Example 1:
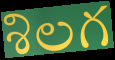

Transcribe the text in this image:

శిలగ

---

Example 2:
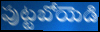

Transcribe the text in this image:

పుట్టబోయెడి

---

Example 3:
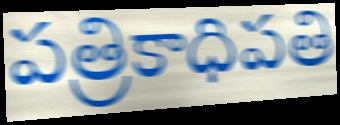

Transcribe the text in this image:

పత్రికాధిపతి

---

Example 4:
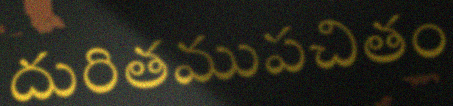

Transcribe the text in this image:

దురితముపచితం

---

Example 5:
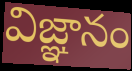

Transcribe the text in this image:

విజ్ఞానం